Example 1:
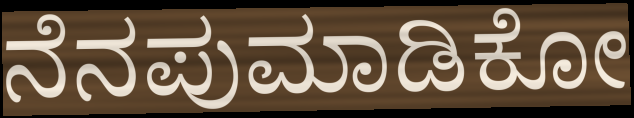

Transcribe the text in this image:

ನೆನಪುಮಾಡಿಕೋ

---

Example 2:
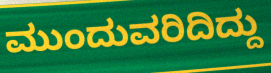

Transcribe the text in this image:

ಮುಂದುವರಿದಿದ್ದು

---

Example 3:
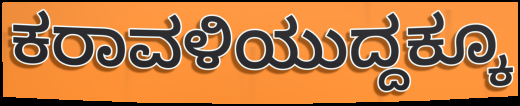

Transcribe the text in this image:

ಕರಾವಳಿಯುದ್ದಕ್ಕೂ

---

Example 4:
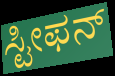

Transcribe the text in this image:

ಸ್ಟೀಫನ್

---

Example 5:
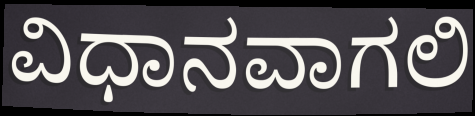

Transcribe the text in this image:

ವಿಧಾನವಾಗಲಿ